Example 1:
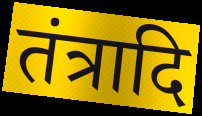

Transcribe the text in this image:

तंत्रादि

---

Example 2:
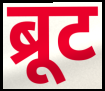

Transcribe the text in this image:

ब्रूट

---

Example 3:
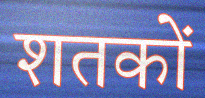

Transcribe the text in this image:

शतकों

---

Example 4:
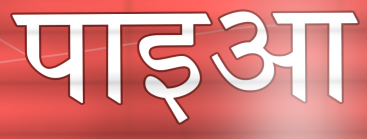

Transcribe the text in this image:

पाइआ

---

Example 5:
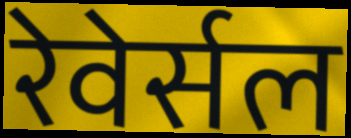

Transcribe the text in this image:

रेवेर्सल